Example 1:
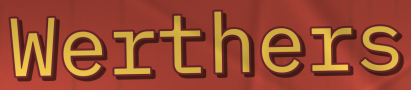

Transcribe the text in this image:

Werthers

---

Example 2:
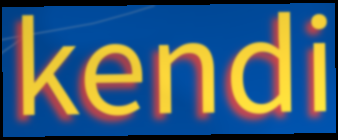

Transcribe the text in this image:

kendi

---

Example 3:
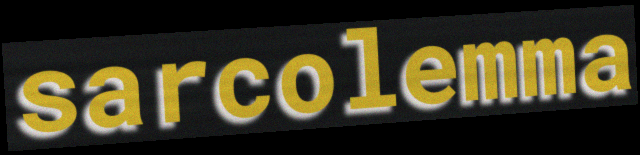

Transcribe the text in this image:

sarcolemma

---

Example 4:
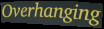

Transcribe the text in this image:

Overhanging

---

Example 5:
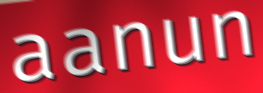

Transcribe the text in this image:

aanun